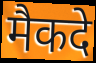
मैकदे